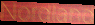
Nordland